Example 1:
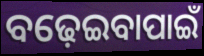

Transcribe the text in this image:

ବଢ଼େଇବାପାଇଁ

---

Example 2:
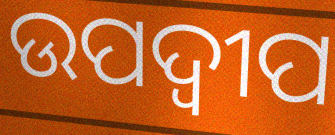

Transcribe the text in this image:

ଉପଦ୍ବୀପ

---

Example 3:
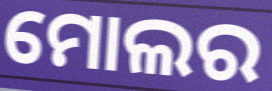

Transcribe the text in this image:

ମୋଲର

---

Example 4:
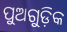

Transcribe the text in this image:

ପୁଅଗୁଡ଼ିକ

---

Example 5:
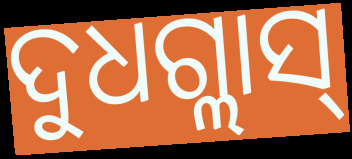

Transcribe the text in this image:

ଦୁଧଗ୍ଲାସ୍